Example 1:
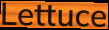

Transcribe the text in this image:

Lettuce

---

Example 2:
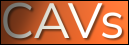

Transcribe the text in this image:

CAVs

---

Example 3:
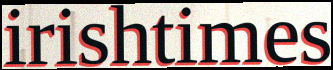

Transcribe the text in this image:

irishtimes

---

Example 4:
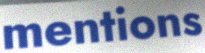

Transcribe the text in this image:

mentions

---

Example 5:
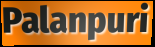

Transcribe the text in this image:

Palanpuri